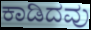
ಕಾಡಿದವು